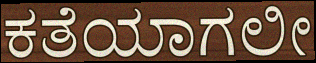
ಕತೆಯಾಗಲೀ